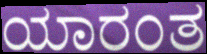
ಯಾರಂತ